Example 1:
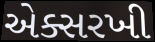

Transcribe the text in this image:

એક્સરખી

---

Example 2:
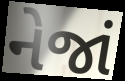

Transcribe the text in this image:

નેજાં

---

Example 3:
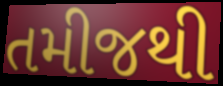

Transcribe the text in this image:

તમીજથી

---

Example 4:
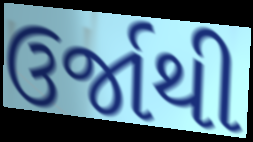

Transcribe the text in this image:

ઉર્જાથી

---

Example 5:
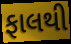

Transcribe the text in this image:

ફાલથી